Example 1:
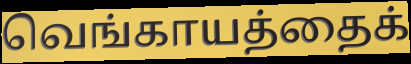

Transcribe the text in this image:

வெங்காயத்தைக்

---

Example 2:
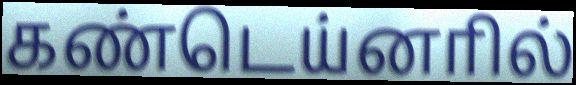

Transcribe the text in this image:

கண்டெய்னரில்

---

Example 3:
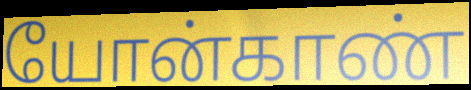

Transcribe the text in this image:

யோன்காண்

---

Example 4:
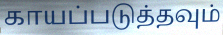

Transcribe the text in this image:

காயப்படுத்தவும்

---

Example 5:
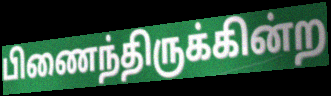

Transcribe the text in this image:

பிணைந்திருக்கின்ற